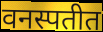
वनस्पतीत